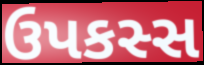
ઉપકસ્સ